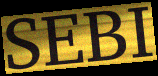
SEBI